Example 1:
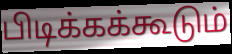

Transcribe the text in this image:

பிடிக்கக்கூடும்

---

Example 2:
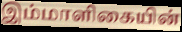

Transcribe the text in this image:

இம்மாளிகையின்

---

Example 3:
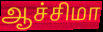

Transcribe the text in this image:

ஆச்சிமா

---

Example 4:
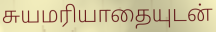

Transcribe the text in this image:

சுயமரியாதையுடன்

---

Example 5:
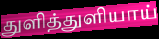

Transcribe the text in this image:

துளித்துளியாய்